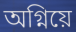
অগ্নিয়ে